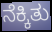
ನೆಕ್ಕಿತು